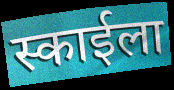
स्काईला